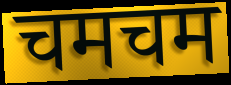
चमचम